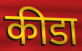
कीडा